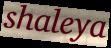
shaleya